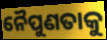
ନୈପୁଣତାକୁ